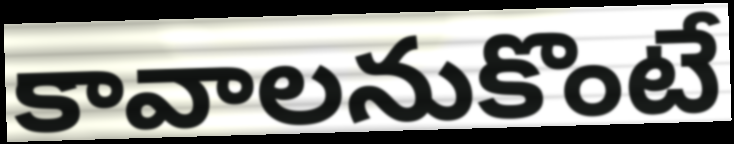
కావాలనుకొంటే